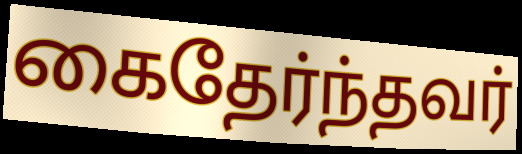
கைதேர்ந்தவர்